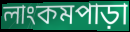
লাংকমপাড়া